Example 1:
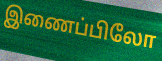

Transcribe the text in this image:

இணைப்பிலோ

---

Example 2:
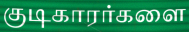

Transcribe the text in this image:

குடிகாரர்களை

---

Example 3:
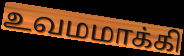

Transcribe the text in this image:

உவமமாக்கி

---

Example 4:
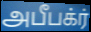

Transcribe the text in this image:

அபீபக்ர்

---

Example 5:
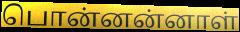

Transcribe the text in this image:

பொன்னன்னாள்